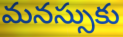
మనస్సుకు